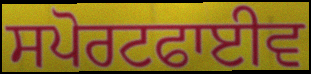
ਸਪੋਰਟਫਾਈਵ